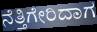
ನೆತ್ತಿಗೇರಿದಾಗ